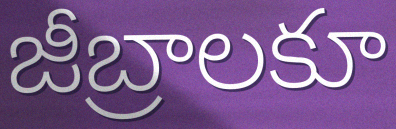
జీబ్రాలకూ